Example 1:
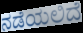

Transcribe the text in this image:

ನಡೆಯಲಿದೆ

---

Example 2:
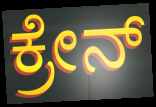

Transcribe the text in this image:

ಕ್ರೇನ್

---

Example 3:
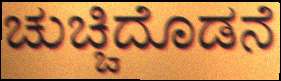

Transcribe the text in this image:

ಚುಚ್ಚಿದೊಡನೆ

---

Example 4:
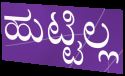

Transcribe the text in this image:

ಹುಟ್ಟಿಲ್ಲ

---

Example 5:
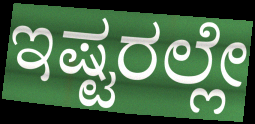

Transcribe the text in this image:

ಇಷ್ಟರಲ್ಲೇ